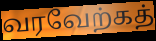
வரவேற்கத்